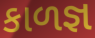
કાળજ્ઞ